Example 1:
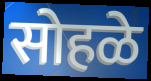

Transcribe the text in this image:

सोहळे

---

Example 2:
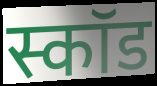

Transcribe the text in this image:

स्कॉड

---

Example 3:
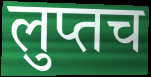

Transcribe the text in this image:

लुप्तच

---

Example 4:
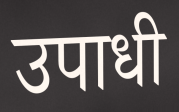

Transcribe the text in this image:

उपाधी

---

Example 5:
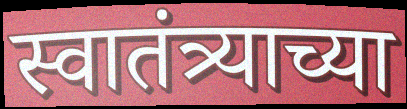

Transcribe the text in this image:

स्वातंत्र्याच्या